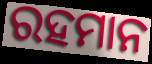
ରହମାନ